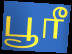
பூரீ